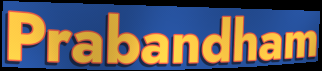
Prabandham